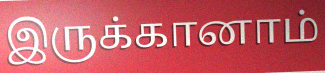
இருக்கானாம்